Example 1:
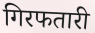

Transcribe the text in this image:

गिरफतारी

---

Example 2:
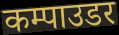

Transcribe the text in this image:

कम्पाउडर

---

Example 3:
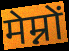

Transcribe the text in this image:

मेम्नों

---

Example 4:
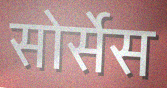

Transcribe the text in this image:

सोर्सेस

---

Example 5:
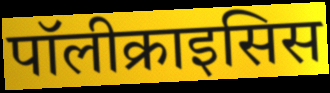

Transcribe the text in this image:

पॉलीक्राइसिस